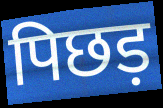
पिछड़